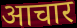
आचार